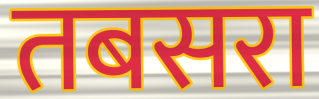
तबसरा